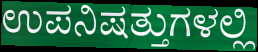
ಉಪನಿಷತ್ತುಗಳಲ್ಲಿ